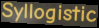
Syllogistic